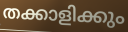
തക്കാളിക്കും